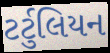
ટર્ટુલિયન